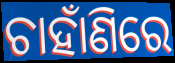
ଚାହାଁଣିରେ